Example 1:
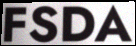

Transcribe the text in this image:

FSDA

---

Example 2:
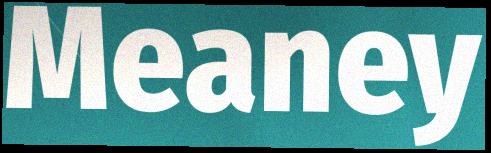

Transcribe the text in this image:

Meaney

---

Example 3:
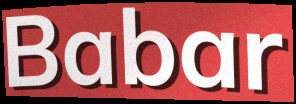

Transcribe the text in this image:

Babar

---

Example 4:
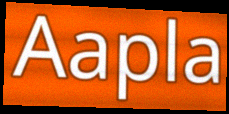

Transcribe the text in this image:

Aapla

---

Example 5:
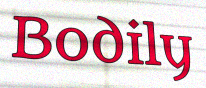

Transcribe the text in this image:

Bodily